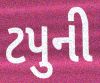
ટપુની